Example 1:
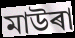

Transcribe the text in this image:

মাউৰা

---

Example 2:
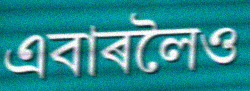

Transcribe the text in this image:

এবাৰলৈও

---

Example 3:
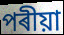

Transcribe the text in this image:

পৰীয়া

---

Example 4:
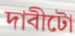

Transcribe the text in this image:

দাবীটো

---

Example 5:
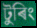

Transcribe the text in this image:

টুৰিং